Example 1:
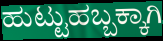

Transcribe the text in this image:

ಹುಟ್ಟುಹಬ್ಬಕ್ಕಾಗಿ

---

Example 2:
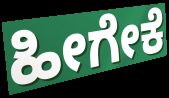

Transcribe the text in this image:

ಹೀಗೇಕೆ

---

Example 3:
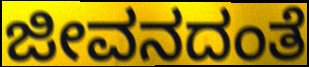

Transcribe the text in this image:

ಜೀವನದಂತೆ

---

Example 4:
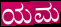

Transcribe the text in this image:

ಯಮ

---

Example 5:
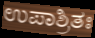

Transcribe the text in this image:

ಉಪಾಶ್ರಿತಃ